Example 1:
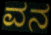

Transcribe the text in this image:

ವನ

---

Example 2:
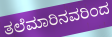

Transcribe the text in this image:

ತಲೆಮಾರಿನವರಿಂದ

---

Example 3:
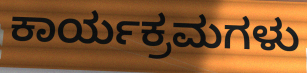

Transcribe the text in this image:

ಕಾರ್ಯಕ್ರಮಗಳು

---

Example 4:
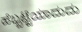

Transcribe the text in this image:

ಹೆಬ್ಬಟ್ಟೆಯಾದುದು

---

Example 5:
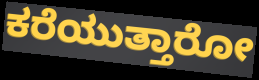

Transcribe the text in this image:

ಕರೆಯುತ್ತಾರೋ